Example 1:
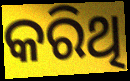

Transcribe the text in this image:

କରିଥି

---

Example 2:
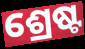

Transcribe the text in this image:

ଶ୍ରେଷ୍ଟ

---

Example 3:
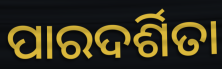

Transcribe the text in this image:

ପାରଦର୍ଶିତା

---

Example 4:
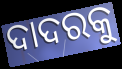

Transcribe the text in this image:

ଦାଦରକୁ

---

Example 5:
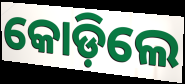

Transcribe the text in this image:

କୋଡ଼ିଲେ